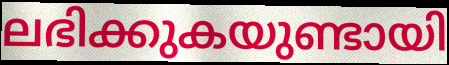
ലഭിക്കുകയുണ്ടായി